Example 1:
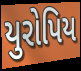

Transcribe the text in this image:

યુરોપિય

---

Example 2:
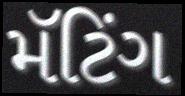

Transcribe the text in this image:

મૅટિંગ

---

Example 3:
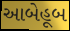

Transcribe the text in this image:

આબેહૂબ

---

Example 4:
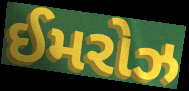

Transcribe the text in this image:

ઈમરોઝ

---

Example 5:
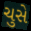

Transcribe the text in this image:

ચુસે